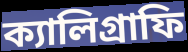
ক্যালিগ্রাফি